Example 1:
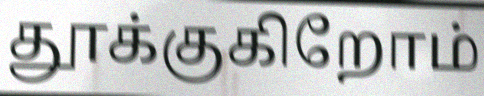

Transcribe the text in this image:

தூக்குகிறோம்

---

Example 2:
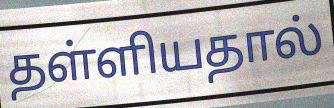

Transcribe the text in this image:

தள்ளியதால்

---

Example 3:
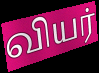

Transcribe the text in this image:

வியர்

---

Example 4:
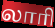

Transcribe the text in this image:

லாரி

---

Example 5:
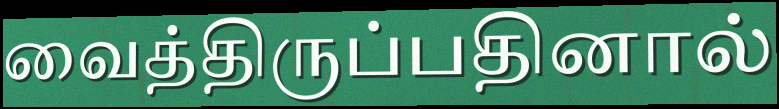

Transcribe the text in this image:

வைத்திருப்பதினால்